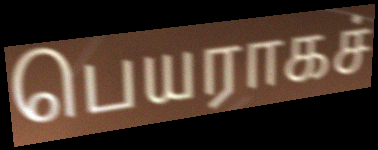
பெயராகச்